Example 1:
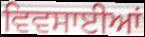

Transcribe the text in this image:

ਵਿਵਸਾਈਆਂ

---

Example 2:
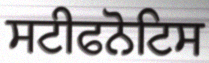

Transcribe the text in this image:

ਸਟੀਫਨੋਟਿਸ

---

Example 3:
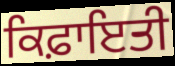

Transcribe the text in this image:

ਕਿਫ਼ਾਇਤੀ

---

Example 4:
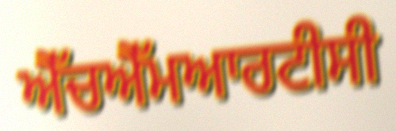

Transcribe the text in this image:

ਐੱਚਐੱਮਆਰਟੀਸੀ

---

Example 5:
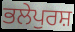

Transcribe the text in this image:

ਭਲੇਪੁਰਸ਼